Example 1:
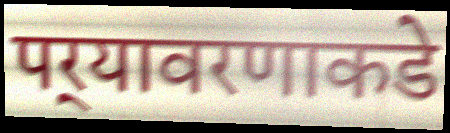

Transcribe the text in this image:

पर्यावरणाकडे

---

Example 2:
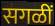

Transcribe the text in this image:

सगळीं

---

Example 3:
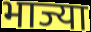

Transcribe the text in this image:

भाज्या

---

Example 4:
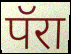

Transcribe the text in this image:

पॅरा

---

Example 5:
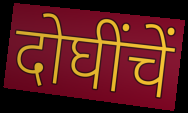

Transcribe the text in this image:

दोघींचें